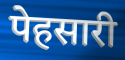
पेहसारी